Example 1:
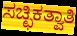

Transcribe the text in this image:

ಸಚ್ಛಿಕತ್ವಾತಿ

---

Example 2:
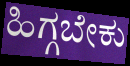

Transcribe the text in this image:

ಹಿಗ್ಗಬೇಕು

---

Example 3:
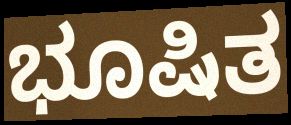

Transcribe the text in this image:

ಭೂಷಿತ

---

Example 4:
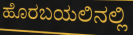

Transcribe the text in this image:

ಹೊರಬಯಲಿನಲ್ಲಿ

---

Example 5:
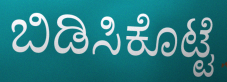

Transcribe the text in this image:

ಬಿಡಿಸಿಕೊಟ್ಟೆ